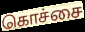
கொச்சை